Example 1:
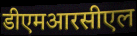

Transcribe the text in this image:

डीएमआरसीएल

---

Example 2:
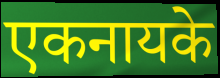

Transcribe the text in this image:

एकनायके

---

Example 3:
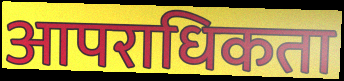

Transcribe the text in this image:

आपराधिकता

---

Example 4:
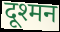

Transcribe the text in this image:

दूश्मन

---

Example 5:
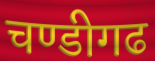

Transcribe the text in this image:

चण्डीगढ